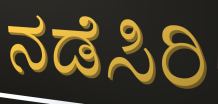
ನಡೆಸಿರಿ